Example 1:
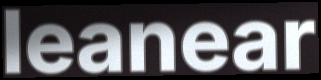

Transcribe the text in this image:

leanear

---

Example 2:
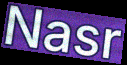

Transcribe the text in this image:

Nasr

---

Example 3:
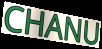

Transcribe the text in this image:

CHANU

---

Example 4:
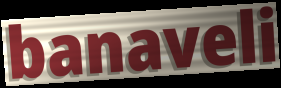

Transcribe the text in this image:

banaveli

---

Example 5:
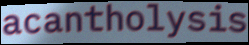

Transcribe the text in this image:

acantholysis